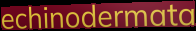
echinodermata